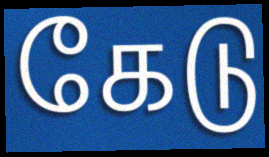
கேடு